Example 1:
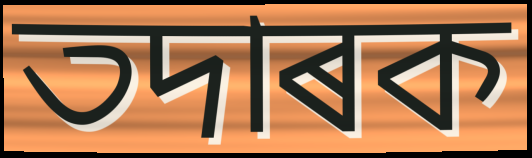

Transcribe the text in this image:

তদাৰক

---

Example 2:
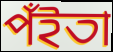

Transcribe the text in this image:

পঁইতা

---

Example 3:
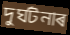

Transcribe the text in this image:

দুৰ্ঘটনাৰ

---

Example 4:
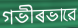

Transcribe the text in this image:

গভীৰভাৱে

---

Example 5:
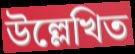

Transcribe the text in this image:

উল্লেখিত